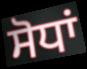
ਸੋਧਾਂ